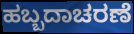
ಹಬ್ಬದಾಚರಣೆ